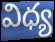
విధ్య